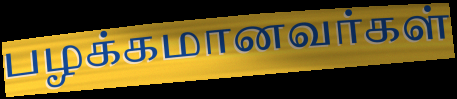
பழக்கமானவர்கள்